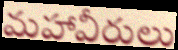
మహావీరులు